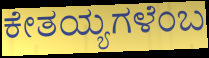
ಕೇತಯ್ಯಗಳೆಂಬ